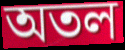
অতল